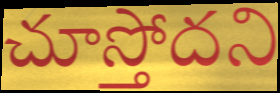
చూస్తోదని